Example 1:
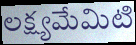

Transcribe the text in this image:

లక్ష్యమేమిటి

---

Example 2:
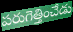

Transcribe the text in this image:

పరుగెత్తించేడు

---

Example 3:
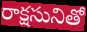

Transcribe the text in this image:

రాక్షసునితో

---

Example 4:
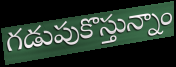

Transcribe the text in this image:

గడుపుకొస్తున్నాం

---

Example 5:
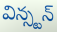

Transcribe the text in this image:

విన్స్టన్